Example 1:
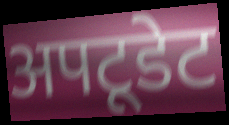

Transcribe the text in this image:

अपटूडेट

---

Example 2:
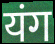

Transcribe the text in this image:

यंग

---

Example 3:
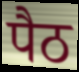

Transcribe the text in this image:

पैठ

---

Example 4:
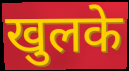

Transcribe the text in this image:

खुलके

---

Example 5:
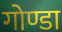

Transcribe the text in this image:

गोण्डा